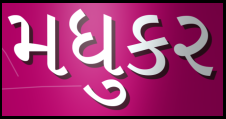
મધુકર